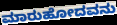
ಮಾರುಹೋದವನು